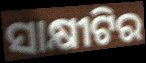
ସାକ୍ଷୀଟିର